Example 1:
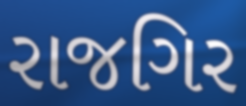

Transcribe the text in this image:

રાજગિર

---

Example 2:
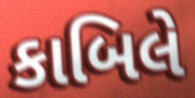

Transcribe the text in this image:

કાબિલે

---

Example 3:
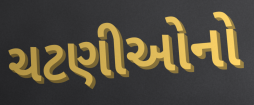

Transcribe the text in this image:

ચટણીઓનો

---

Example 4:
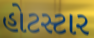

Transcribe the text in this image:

હોટસ્ટાર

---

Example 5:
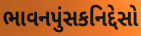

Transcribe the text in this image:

ભાવનપુંસકનિદ્દેસો